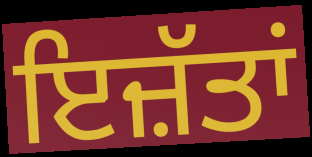
ਇਜ਼ੱਤਾਂ